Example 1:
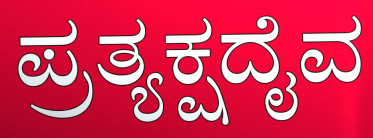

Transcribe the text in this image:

ಪ್ರತ್ಯಕ್ಷದೈವ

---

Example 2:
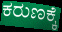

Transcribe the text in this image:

ಕರುಣಕ್ಕೆ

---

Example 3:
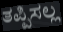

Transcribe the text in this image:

ತಪ್ಪಿಸಲ್ಲ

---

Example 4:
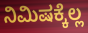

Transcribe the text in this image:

ನಿಮಿಷಕ್ಕೆಲ್ಲ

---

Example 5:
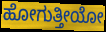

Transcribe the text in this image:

ಹೋಗುತ್ತೀಯೋ